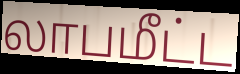
லாபமீட்ட